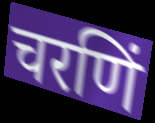
चरणिं